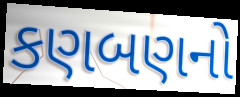
કણબણનો